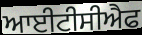
ਆਈਟੀਸੀਐਫ